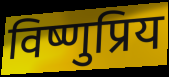
विष्णुप्रिय